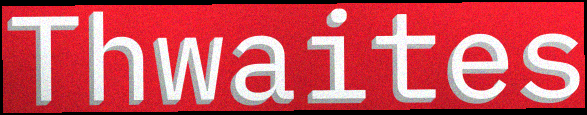
Thwaites